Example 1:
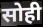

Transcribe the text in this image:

सोही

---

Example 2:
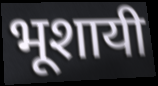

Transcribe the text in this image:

भूशायी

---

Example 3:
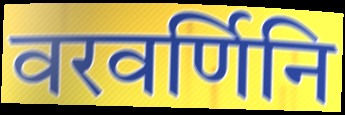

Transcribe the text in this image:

वरवर्णिनि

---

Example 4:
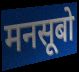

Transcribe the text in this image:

मनसूबो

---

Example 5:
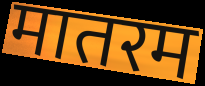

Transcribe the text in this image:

मातरम